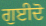
ਗੁਈਦੋ